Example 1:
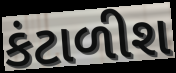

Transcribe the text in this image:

કંટાળીશ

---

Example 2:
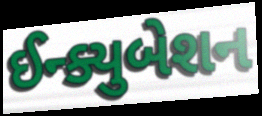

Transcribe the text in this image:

ઈન્ક્યુબેશન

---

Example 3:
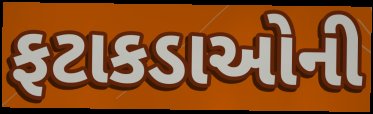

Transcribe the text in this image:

ફટાકડાઓની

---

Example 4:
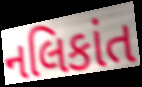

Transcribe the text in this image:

નલિકાંત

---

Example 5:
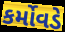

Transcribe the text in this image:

કર્મોવડે